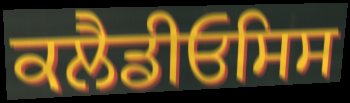
ਕਲੈਡੀਓਸਿਸ